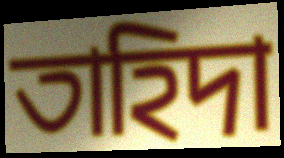
তাহিদা